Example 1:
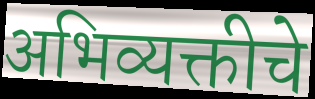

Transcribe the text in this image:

अभिव्यक्तीचे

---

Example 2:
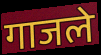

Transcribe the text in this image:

गाजले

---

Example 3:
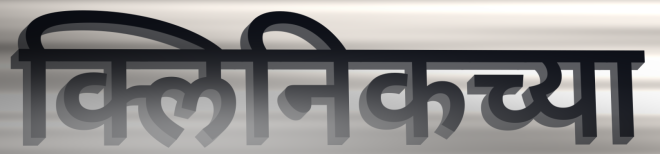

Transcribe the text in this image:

क्लिनिकच्या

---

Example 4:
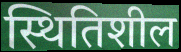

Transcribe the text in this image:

स्थितिशील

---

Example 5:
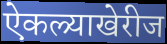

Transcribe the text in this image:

ऐकल्याखेरीज